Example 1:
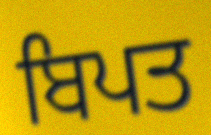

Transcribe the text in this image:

ਬਿਪਤ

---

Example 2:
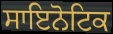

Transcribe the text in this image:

ਸਾਇਨੋਟਿਕ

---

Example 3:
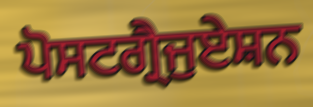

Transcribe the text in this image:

ਪੋਸਟਗ੍ਰੈਜੁਏਸ਼ਨ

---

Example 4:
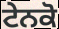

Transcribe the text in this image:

ਟੇਨਕੋ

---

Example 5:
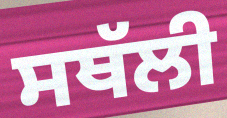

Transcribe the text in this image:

ਸਥੱਲੀ